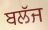
ਬਲੱਜ